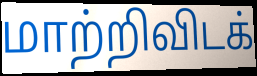
மாற்றிவிடக்